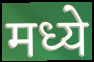
मध्ये